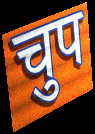
चुप